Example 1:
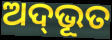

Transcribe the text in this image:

ଅଦ୍‍ଭୂତ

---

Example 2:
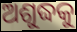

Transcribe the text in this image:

ଅଶୁଦ୍ଧକୁ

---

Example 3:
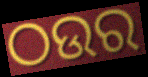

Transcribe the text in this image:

ଠଉର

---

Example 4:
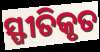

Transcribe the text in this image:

ସ୍ଫୀତିକୃତ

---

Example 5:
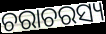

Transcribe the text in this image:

ଚରାଚରସ୍ୟ